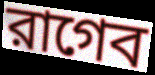
রাগেব